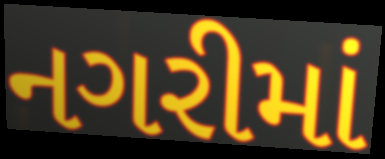
નગરીમાં